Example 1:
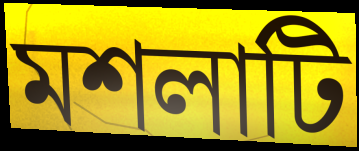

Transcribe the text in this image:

মশলাটি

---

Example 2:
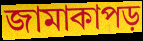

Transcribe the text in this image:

জামাকাপড়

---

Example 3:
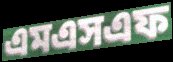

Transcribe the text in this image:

এমএসএফ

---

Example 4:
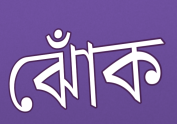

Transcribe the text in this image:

ঝোঁক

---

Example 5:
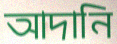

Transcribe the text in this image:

আদানি